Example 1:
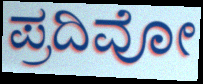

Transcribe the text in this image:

ಪ್ರದಿವೋ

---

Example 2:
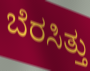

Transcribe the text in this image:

ಬೆರಸಿತ್ತು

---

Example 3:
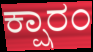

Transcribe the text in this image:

ಕ್ಷಾರಂ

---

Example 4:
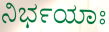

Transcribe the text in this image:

ನಿರ್ಭಯಾಃ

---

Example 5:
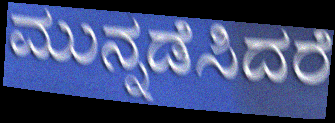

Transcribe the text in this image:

ಮುನ್ನಡೆಸಿದರೆ